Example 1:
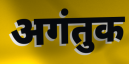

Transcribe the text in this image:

अगंतुक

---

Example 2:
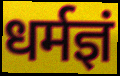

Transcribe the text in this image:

धर्मज्ञं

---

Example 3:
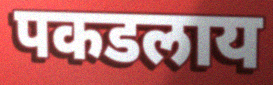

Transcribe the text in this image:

पकडलाय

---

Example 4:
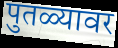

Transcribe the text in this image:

पुतळ्यावर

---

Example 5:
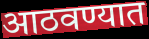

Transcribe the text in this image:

आठवण्यात